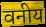
वनीय